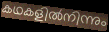
കഥകളിൽനിന്നും